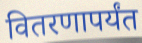
वितरणापर्यंत